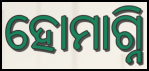
ହୋମାଗ୍ନି